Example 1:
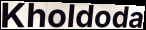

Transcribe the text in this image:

Kholdoda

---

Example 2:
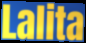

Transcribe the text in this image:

Lalita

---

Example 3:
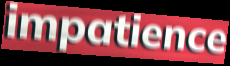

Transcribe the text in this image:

impatience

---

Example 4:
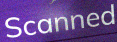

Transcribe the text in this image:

Scanned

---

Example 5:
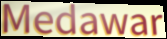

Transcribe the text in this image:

Medawar